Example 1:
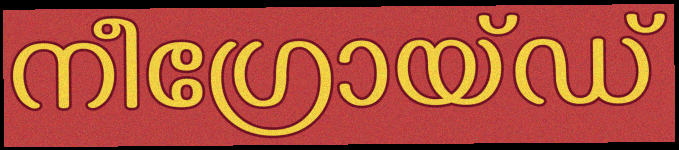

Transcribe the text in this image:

നീഗ്രോയ്ഡ്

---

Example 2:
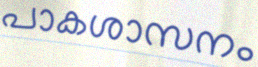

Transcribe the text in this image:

പാകശാസനം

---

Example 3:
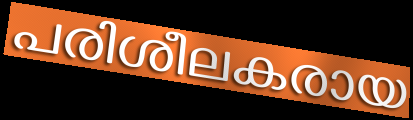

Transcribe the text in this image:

പരിശീലകരായ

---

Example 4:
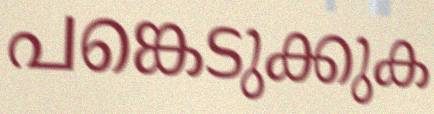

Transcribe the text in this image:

പങ്കെടുക്കുക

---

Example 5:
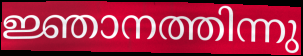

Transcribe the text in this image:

ജ്ഞാനത്തിന്നു